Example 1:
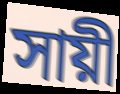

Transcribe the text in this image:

সায়ী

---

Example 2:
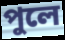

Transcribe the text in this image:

পুলে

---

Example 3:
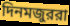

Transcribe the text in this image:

দিনমজুররা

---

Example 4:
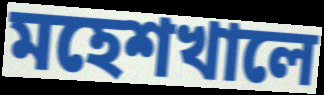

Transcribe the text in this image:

মহেশখালে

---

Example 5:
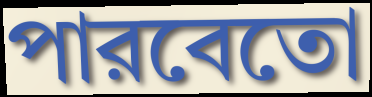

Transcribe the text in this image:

পারবেতো